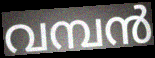
വമ്പൻ